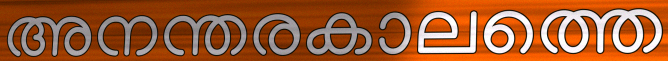
അനന്തരകാലത്തെ